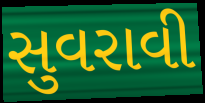
સુવરાવી